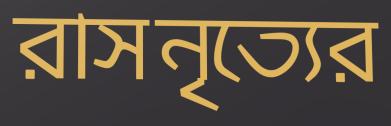
রাসনৃত্যের